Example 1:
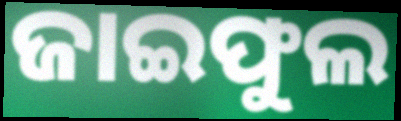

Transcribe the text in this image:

ଜାଇଫୁଲ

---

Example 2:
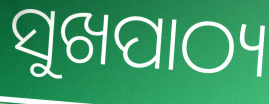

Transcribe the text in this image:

ସୁଖପାଠ୍ୟ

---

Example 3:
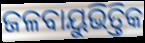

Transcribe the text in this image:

ଜଳବାୟୁଭିତ୍ତିକ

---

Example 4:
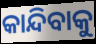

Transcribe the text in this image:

କାନ୍ଦିବାକୁ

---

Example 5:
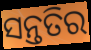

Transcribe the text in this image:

ସନ୍ତତିର